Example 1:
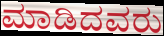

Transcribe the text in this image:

ಮಾಡಿದವರು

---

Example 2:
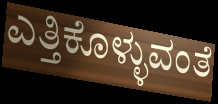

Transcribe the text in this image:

ಎತ್ತಿಕೊಳ್ಳುವಂತೆ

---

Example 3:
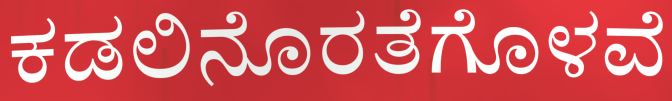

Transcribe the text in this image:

ಕಡಲಿನೊರತೆಗೊಳವೆ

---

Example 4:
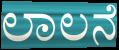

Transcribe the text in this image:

ಲಾಲನೆ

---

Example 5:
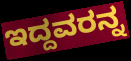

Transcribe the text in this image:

ಇದ್ದವರನ್ನ